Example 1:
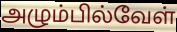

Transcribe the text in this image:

அழும்பில்வேள்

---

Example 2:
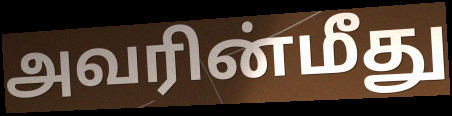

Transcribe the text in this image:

அவரின்மீது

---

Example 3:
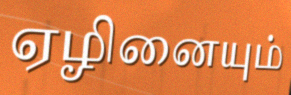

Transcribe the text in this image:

ஏழினையும்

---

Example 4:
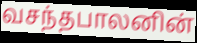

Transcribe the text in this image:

வசந்தபாலனின்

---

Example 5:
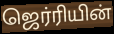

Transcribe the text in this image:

ஜெர்ரியின்